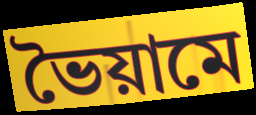
ভৈয়ামে